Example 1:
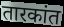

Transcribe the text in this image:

तारकांत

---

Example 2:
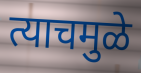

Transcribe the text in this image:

त्याचमुळे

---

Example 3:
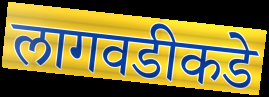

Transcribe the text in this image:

लागवडीकडे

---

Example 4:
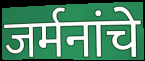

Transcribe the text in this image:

जर्मनांचे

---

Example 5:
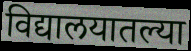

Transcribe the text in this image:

विद्यालयातल्या